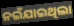
ନଇଁଯାଇଥିଲା